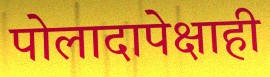
पोलादापेक्षाही